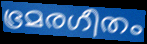
ഭ്രമരഗീതം